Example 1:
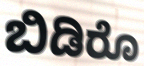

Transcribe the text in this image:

ಬಿಡಿರೊ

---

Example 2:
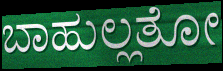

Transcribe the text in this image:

ಬಾಹುಲ್ಲತೋ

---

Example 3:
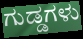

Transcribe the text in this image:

ಗುಡ್ಡಗಳು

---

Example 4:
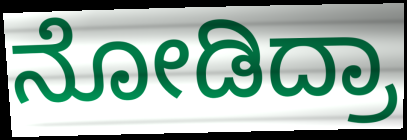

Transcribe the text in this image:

ನೋಡಿದ್ರಾ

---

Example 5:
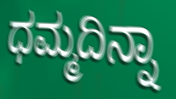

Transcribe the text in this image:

ಧಮ್ಮದಿನ್ನಾ